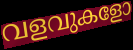
വളവുകളോ